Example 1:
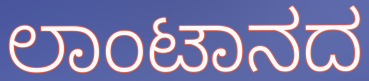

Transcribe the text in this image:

ಲಾಂಟಾನದ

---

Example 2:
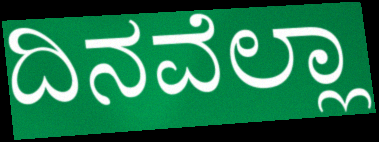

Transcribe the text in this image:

ದಿನವೆಲ್ಲಾ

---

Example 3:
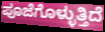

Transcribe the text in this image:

ಪೂಜೆಗೊಳ್ಳುತ್ತಿದೆ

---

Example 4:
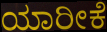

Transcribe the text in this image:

ಯಾರೀಕೆ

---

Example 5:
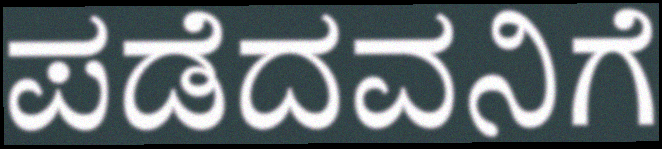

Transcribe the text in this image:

ಪಡೆದವನಿಗೆ